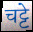
चट्टे